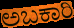
ಅಬಕಾರಿ